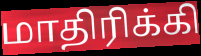
மாதிரிக்கி